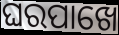
ଘରପାଖେ